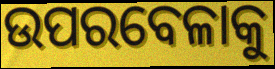
ଉପରବେଳାକୁ